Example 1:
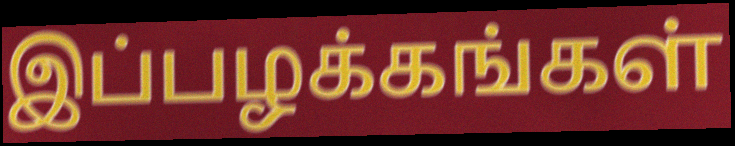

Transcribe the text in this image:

இப்பழக்கங்கள்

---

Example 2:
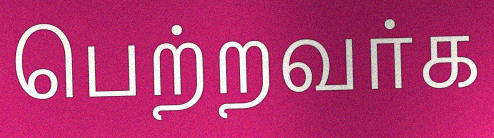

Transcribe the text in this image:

பெற்றவர்க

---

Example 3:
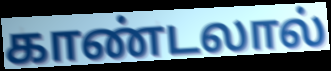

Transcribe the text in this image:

காண்டலால்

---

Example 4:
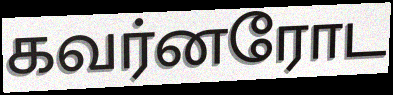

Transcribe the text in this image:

கவர்னரோட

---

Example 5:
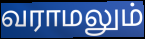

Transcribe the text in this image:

வராமலும்